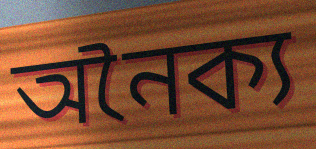
অনৈক্য